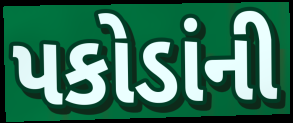
પકોડાંની